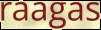
raagas